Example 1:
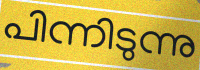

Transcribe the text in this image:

പിന്നിടുന്നു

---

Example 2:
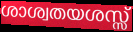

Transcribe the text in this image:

ശാശ്വതയശസ്സ്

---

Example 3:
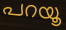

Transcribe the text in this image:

പറയൂ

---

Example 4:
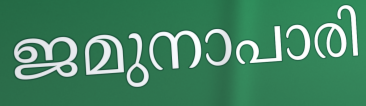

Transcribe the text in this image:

ജമുനാപാരി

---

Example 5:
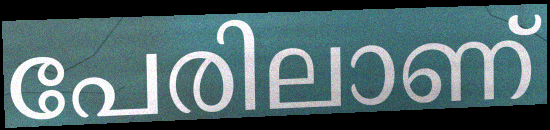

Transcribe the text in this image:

പേരിലാണ്